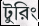
টুরিং